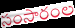
సంసారంల